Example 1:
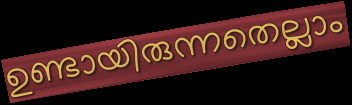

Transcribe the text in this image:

ഉണ്ടായിരുന്നതെല്ലാം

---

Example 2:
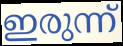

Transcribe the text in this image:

ഇരുന്ന്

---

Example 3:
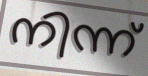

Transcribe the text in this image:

നിന്ന്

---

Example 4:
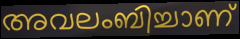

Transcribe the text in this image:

അവലംബിച്ചാണ്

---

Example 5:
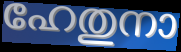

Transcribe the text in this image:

ഹേതുനാ